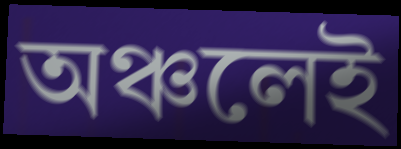
অঞ্চলেই